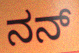
ನನ್